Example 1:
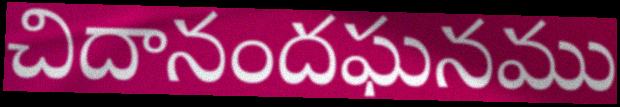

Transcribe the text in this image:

చిదానందఘనము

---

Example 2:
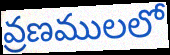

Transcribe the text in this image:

వ్రణములలో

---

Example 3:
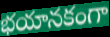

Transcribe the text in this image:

భయానకంగా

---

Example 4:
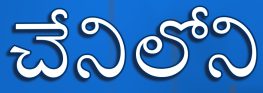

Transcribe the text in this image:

చేనిలోని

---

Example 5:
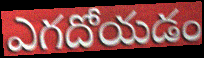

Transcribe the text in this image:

ఎగదోయడం